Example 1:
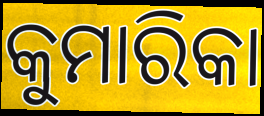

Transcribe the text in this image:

କୁମାରିକା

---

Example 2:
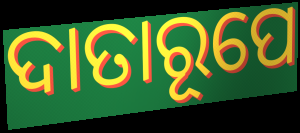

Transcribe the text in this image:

ଦାତାରୂପେ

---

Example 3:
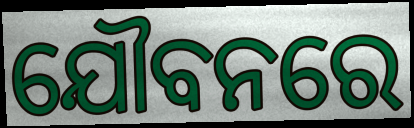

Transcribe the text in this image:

ଯୌବନରେ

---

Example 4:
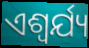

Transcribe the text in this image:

ଏଶ୍ଵର୍ଯ୍ୟ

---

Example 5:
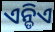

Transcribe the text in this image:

ଏନ୍ଡିଏ